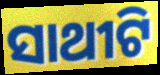
ସାଥୀଟି